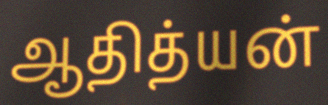
ஆதித்யன்